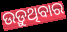
ଉଡ଼ୁଥିବାର